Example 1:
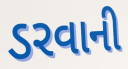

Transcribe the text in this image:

ડરવાની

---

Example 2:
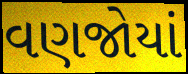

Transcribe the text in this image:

વણજોયાં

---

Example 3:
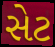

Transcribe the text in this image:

સેટ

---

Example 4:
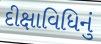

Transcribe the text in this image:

દીક્ષાવિધિનું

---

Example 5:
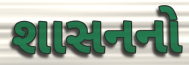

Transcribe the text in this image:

શાસનનો